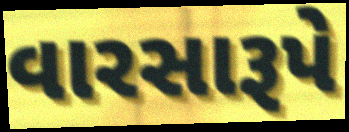
વારસારૂપે